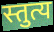
स्तुत्य